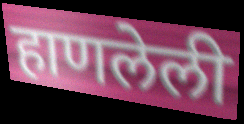
हाणलेली